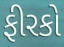
ફીરકો